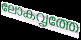
ലോകവൃത്തേ